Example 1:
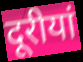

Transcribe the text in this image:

दूरीयां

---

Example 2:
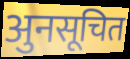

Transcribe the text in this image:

अुनसूचित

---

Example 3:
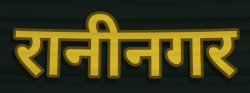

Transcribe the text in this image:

रानीनगर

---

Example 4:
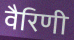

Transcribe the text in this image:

वैरिणी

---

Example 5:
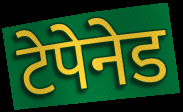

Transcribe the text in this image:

टेपेनेड